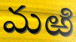
మఱి